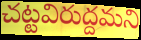
చట్టవిరుద్దమని